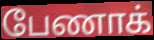
பேணாக்